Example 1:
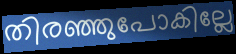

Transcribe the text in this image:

തിരഞ്ഞുപോകില്ലേ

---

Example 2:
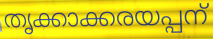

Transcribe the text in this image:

തൃക്കാക്കരയപ്പന്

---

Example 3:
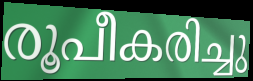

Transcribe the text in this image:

രൂപീകരിച്ചു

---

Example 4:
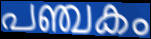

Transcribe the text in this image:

പഞ്ചകം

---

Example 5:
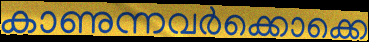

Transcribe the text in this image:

കാണുന്നവർക്കൊക്കെ